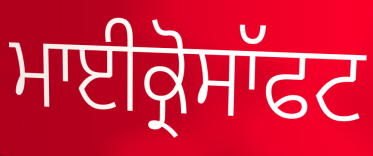
ਮਾਈਕ੍ਰੋਸਾੱਫਟ